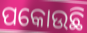
ପକୋଉଛି